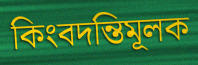
কিংবদন্তিমূলক